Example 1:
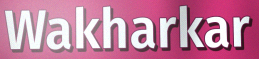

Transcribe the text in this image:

Wakharkar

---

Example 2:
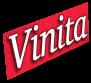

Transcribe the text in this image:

Vinita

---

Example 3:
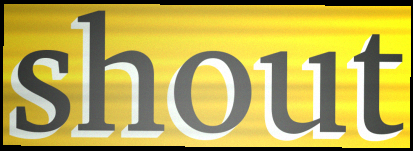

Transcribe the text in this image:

shout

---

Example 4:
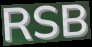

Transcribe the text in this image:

RSB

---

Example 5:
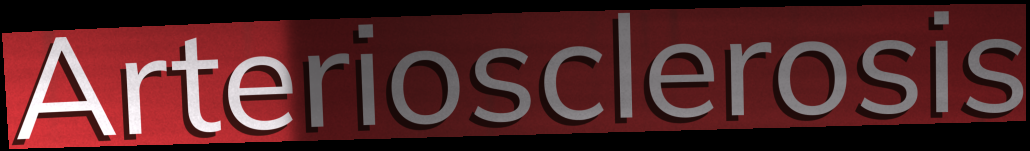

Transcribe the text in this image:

Arteriosclerosis